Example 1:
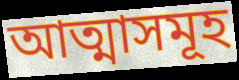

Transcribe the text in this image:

আত্মাসমূহ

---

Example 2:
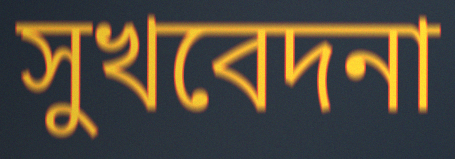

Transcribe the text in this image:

সুখবেদনা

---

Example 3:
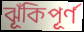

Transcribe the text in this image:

ঝূঁকিপূর্ণ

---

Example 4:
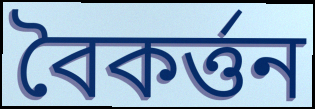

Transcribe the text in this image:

বৈকর্ত্তন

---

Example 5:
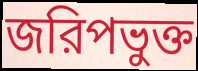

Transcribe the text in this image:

জরিপভুক্ত